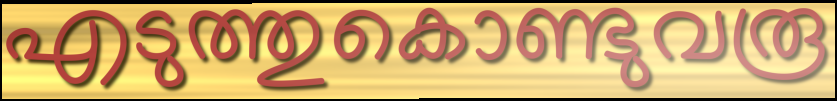
എടുത്തുകൊണ്ടുവരൂ